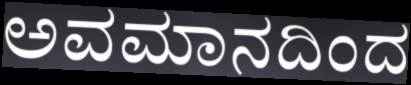
ಅವಮಾನದಿಂದ